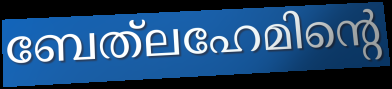
ബേത്‌ലഹേമിന്റെ